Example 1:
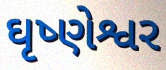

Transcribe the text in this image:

ઘૃષ્ણેશ્વર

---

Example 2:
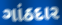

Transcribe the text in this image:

ગાંઠદાર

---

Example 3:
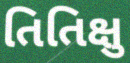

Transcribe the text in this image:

તિતિક્ષુ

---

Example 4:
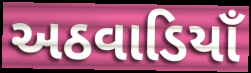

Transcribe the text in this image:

અઠવાડિયાઁ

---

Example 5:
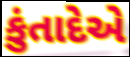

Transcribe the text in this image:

કુંતાદેએ